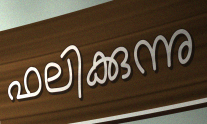
ഫലിക്കുന്നു